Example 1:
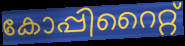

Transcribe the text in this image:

കോപ്പിറൈറ്റ്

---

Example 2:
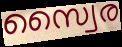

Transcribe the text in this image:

സ്വൈര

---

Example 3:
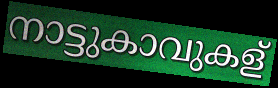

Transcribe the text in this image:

നാട്ടുകാവുകള്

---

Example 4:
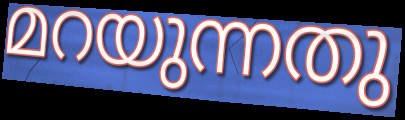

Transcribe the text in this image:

മറയുന്നതു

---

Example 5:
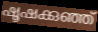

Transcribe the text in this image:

ഷൂഷക്കുഞ്ഞ്